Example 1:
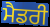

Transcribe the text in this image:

ਮੈਡਰੀ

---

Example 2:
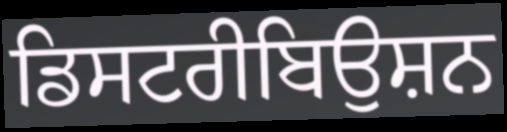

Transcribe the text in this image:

ਡਿਸਟਰੀਬਿਉਸ਼ਨ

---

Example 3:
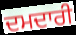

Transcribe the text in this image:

ਦਮਦਾਰੀ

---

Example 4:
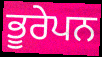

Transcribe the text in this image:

ਭੂਰੇਪਨ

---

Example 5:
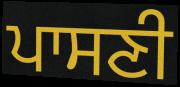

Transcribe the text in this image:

ਪਾਸਣੀ